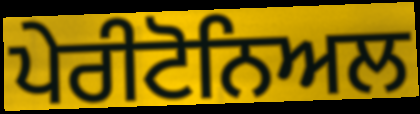
ਪੇਰੀਟੋਨਿਅਲ